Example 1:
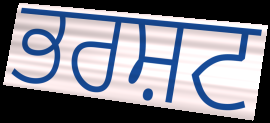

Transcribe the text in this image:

ਭਰਸ਼ਟ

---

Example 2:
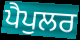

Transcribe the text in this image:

ਪੈਪੁਲਰ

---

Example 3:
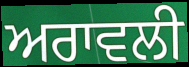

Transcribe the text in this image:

ਅਰਾਵਲੀ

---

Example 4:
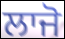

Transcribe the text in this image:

ਲਾਜੋ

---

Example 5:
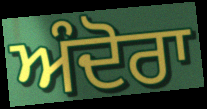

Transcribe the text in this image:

ਅੰਦੋਰਾ